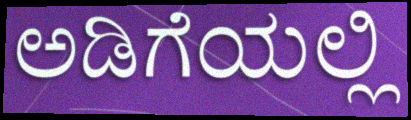
ಅಡಿಗೆಯಲ್ಲಿ